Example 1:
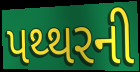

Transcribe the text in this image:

પથ્થરની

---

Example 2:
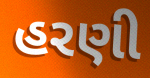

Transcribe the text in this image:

હરણી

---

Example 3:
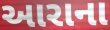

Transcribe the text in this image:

આરાના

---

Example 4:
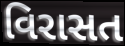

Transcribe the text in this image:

વિરાસત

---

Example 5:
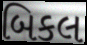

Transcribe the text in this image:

બિકલ